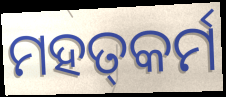
ମହତ୍‌କର୍ମ